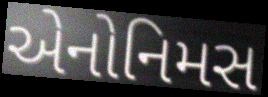
એનોનિમસ